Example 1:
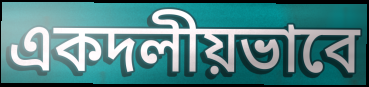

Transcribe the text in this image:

একদলীয়ভাবে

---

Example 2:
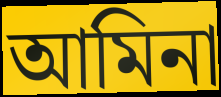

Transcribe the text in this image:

আমিনা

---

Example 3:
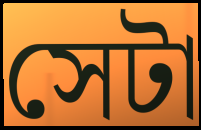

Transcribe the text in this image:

সেটা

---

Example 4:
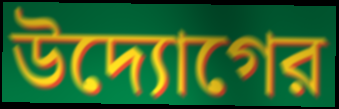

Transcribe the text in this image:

উদ্যোগের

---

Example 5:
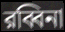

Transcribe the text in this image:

রব্বিনা